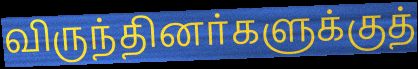
விருந்தினர்களுக்குத்